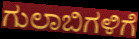
ಗುಲಾಬಿಗಳಿಗೆ